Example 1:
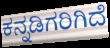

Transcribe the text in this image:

ಕನ್ನಡಿಗರಿಗಿದೆ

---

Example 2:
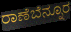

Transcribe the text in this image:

ರಾಣೆಬೆನ್ನೂರ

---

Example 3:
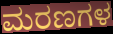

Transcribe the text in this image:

ಮರಣಗಳ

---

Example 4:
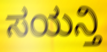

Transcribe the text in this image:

ಸಯನ್ತಿ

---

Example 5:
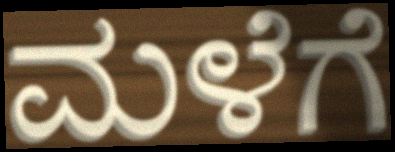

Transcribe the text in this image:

ಮಳೆಗೆ